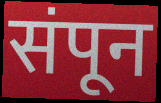
संपून